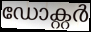
ഡോക്റ്റർ